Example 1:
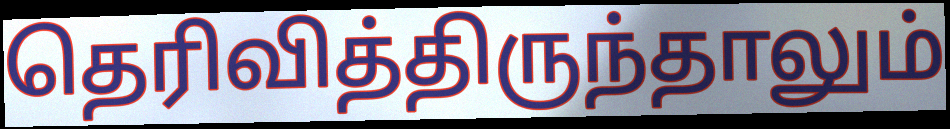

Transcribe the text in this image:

தெரிவித்திருந்தாலும்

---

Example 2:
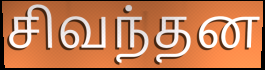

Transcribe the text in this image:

சிவந்தன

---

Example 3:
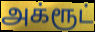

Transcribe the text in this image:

அக்ரூட்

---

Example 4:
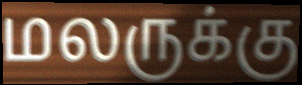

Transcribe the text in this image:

மலருக்கு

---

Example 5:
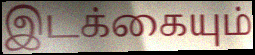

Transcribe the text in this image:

இடக்கையும்